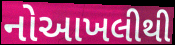
નોઆખલીથી